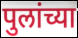
पुलांच्या